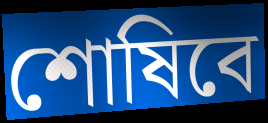
শোষিবে